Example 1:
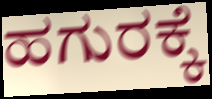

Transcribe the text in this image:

ಹಗುರಕ್ಕೆ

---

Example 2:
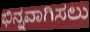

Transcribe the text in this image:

ಭಿನ್ನವಾಗಿಸಲು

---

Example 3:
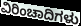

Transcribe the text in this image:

ವಿರಿಂಚಾದಿಗಳು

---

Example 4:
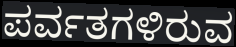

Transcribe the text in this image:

ಪರ್ವತಗಳಿರುವ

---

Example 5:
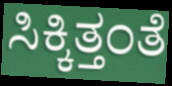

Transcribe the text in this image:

ಸಿಕ್ಕಿತ್ತಂತೆ